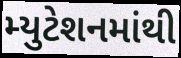
મ્યુટેશનમાંથી